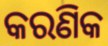
କରଣିକ